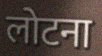
लोटना